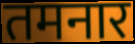
तमनार